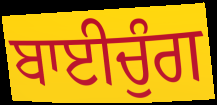
ਬਾਈਚੁੰਗ